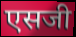
एसजी